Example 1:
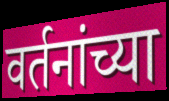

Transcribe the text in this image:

वर्तनांच्या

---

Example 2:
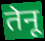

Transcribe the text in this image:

तेनू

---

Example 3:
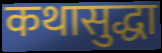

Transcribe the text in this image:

कथासुद्धा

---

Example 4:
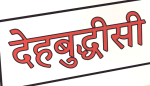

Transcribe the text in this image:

देहबुद्धीसी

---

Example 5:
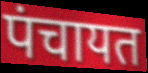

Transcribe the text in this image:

पंचायत